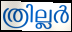
ത്രില്ലർ